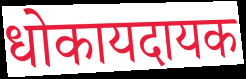
धोकायदायक